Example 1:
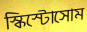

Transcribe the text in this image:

স্কিস্টোসোম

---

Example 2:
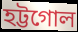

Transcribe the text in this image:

হট্টগোল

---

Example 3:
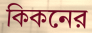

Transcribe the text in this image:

কিকনের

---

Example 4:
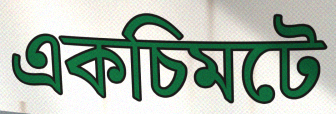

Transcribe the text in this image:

একচিমটে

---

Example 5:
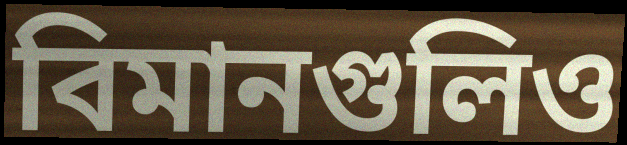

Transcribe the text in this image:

বিমানগুলিও